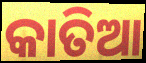
କାତିଆ